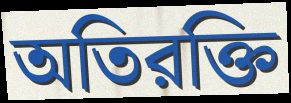
অতিরক্তি